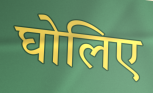
घोलिए